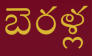
బెరళ్ల